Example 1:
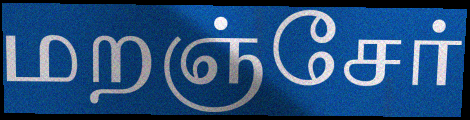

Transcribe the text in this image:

மறஞ்சேர்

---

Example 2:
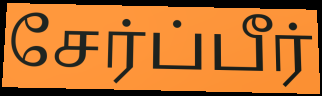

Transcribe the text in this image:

சேர்ப்பீர்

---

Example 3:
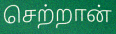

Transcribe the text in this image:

செற்றான்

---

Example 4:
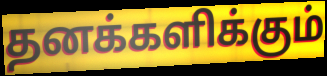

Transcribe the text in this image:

தனக்களிக்கும்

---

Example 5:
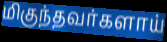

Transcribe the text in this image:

மிகுந்தவர்களாய்